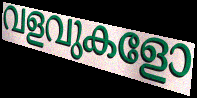
വളവുകളോ